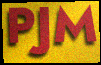
PJM